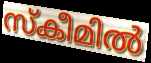
സ്കീമിൽ